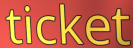
ticket